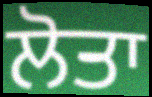
ਲੋਤਾ